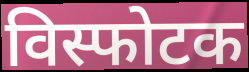
विस्फोटक